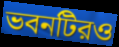
ভবনটিরও